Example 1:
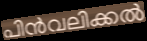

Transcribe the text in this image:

പിൻവലിക്കൽ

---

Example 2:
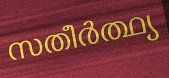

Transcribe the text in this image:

സതീർത്ഥ്യ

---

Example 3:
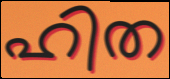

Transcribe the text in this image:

ഹിത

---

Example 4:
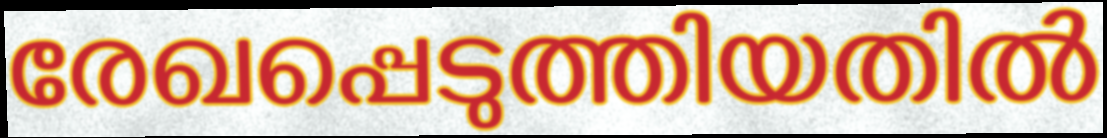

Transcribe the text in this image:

രേഖപ്പെടുത്തിയതിൽ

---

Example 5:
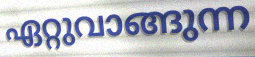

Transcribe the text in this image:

ഏറ്റുവാങ്ങുന്ന